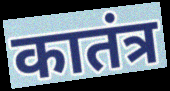
कातंत्र